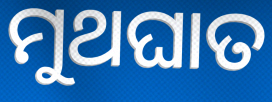
ମୁଥଘାତ